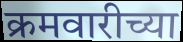
क्रमवारीच्या